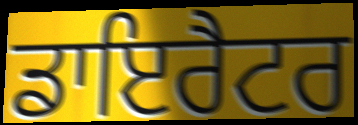
ਡਾਇਰੈਟਰ